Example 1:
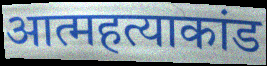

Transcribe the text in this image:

आत्महत्याकांड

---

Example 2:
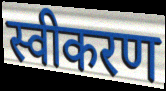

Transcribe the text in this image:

स्वीकरण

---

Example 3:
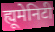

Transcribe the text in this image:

ह्यूमेनिटी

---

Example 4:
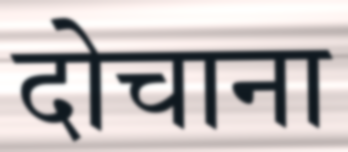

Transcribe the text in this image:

दोचाना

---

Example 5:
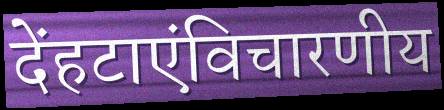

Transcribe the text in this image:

देंहटाएंविचारणीय